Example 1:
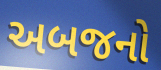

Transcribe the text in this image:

અબજનો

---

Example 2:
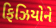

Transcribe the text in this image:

ફિઝિયોને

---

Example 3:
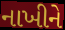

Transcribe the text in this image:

નાખીને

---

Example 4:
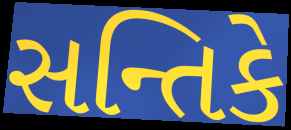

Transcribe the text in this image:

સન્તિકે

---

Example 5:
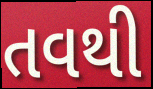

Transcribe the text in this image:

તવથી